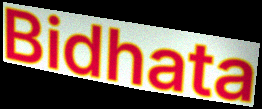
Bidhata